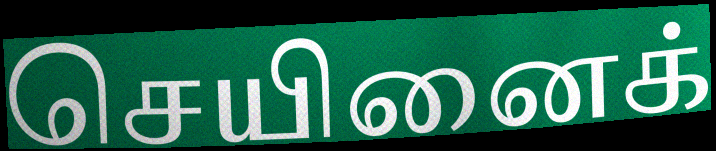
செயினைக்